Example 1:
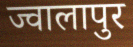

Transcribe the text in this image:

ज्वालापुर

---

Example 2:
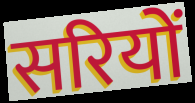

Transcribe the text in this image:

सरियों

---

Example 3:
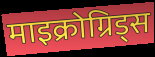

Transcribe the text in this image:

माइक्रोग्रिड्स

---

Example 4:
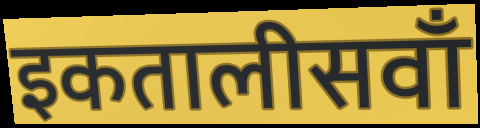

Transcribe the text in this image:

इकतालीसवाँ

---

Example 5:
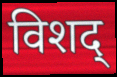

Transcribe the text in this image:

विशद्